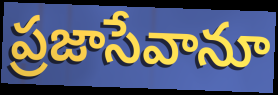
ప్రజాసేవానూ